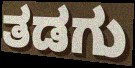
ತಡಗು